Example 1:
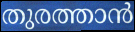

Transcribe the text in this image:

തുരത്താൻ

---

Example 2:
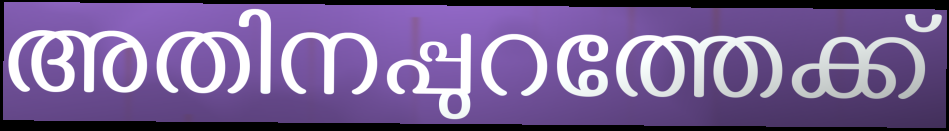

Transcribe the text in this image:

അതിനപ്പുറത്തേക്ക്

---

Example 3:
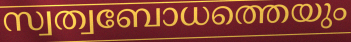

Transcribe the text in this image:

സ്വത്വബോധത്തെയും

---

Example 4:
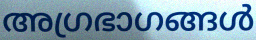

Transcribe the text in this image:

അഗ്രഭാഗങ്ങൾ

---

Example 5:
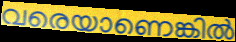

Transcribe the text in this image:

വരെയാണെങ്കിൽ